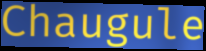
Chaugule